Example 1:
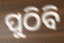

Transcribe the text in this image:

ପୁଠିବି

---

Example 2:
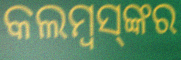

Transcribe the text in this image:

କଲମ୍ୱସ୍‌ଙ୍କର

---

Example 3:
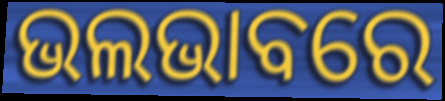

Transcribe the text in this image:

ଭଲଭାବରେ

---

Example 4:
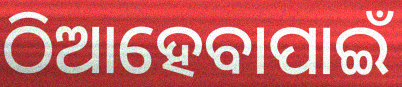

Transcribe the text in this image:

ଠିଆହେବାପାଇଁ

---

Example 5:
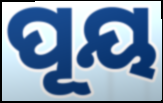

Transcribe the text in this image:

ପୂୟ